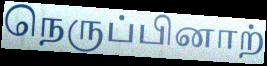
நெருப்பினாற்